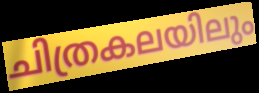
ചിത്രകലയിലും